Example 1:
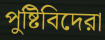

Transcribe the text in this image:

পুষ্টিবিদেরা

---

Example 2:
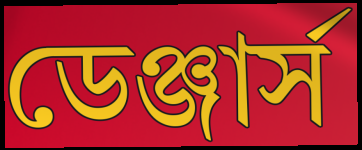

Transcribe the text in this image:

ডেঞ্জার্স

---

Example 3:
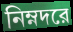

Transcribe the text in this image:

নিম্নদরে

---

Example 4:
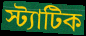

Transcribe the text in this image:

স্ট্যাটিক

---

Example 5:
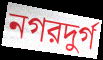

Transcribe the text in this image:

নগরদুর্গ